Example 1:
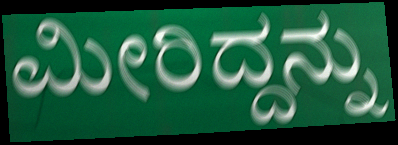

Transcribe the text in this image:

ಮೀರಿದ್ದನ್ನು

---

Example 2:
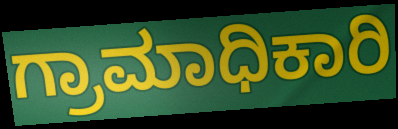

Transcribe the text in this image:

ಗ್ರಾಮಾಧಿಕಾರಿ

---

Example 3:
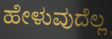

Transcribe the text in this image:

ಹೇಳುವುದೆಲ್ಲ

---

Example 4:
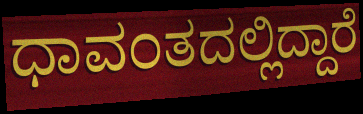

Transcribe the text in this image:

ಧಾವಂತದಲ್ಲಿದ್ದಾರೆ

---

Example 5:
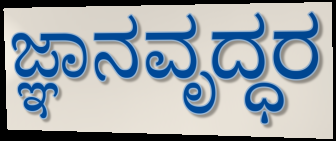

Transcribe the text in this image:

ಜ್ಞಾನವೃದ್ಧರ